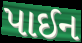
પાઈન